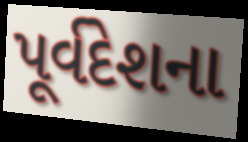
પૂર્વદેશના